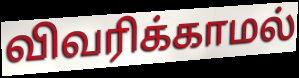
விவரிக்காமல்